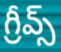
గ్రీవ్స్